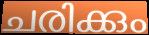
ചരിക്കും